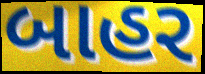
બાહર